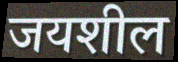
जयशील